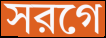
সরগে